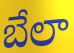
బేలా